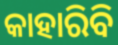
କାହାରିବି